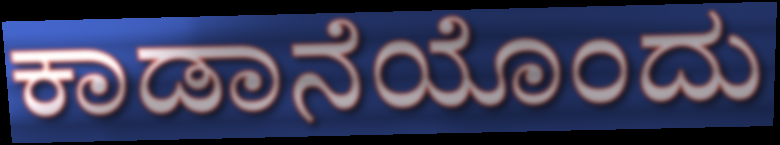
ಕಾಡಾನೆಯೊಂದು